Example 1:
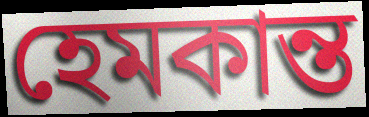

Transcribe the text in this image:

হেমকান্ত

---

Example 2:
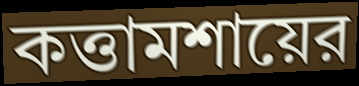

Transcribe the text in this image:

কত্তামশায়ের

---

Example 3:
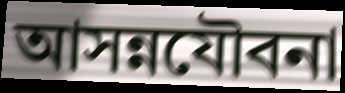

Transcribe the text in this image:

আসন্নযৌবনা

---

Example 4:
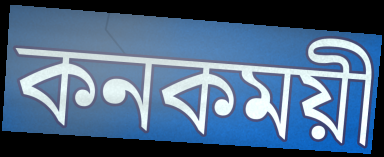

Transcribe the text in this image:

কনকময়ী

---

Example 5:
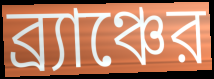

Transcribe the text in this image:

ব্র্যাঞ্চের